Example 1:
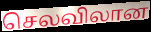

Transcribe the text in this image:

செலவிலான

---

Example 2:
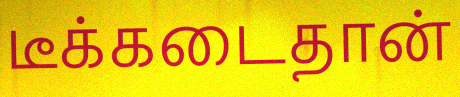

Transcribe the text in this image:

டீக்கடைதான்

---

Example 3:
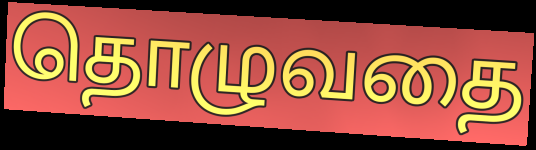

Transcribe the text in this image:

தொழுவதை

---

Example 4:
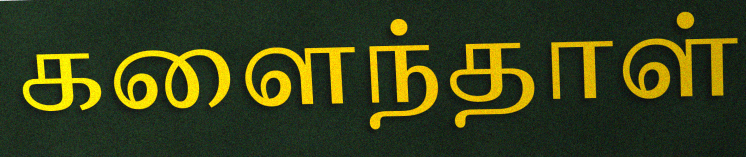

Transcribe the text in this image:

களைந்தாள்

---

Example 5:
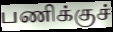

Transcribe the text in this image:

பணிக்குச்